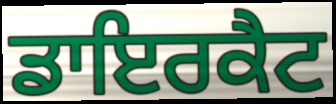
ਡਾਇਰਕੈਟ